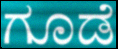
ಗೂಡೆ